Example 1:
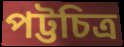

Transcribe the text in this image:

পট্টচিত্র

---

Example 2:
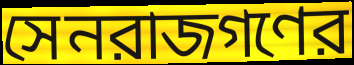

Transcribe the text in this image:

সেনরাজগণের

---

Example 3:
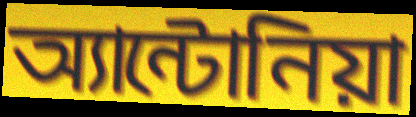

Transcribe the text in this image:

অ্যান্টোনিয়া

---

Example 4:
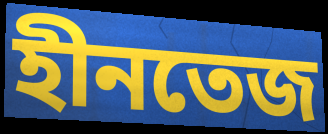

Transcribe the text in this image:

হীনতেজ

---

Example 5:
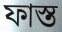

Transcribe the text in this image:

ফাস্ত